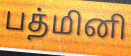
பத்மினி